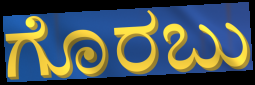
ಗೊರಬು